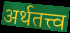
अर्थतत्त्व